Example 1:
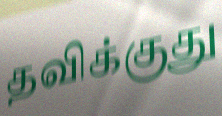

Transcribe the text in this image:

தவிக்குது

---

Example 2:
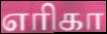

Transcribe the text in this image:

எரிகா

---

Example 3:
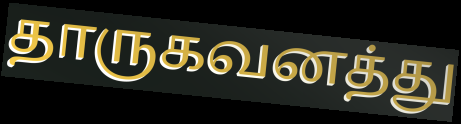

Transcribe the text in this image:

தாருகவனத்து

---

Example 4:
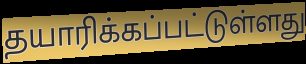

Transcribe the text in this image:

தயாரிக்கப்பட்டுள்ளது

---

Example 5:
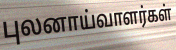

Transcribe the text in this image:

புலனாய்வாளர்கள்